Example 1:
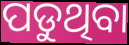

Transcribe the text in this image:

ପଡୁଥିବା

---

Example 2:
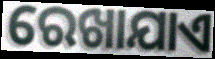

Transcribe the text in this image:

ରେଖାଯାଏ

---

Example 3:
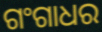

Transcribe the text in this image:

ଗଂଗାଧର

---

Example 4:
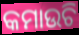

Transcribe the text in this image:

କମାଉଚି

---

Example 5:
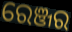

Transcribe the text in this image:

ରେଞ୍ଜର